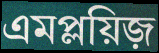
এমপ্লয়িজ়